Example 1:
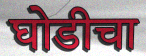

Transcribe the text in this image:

घोडीचा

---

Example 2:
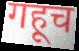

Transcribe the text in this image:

गहूच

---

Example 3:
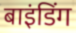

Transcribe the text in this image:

बाइंडिंग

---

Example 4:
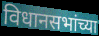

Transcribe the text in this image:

विधानसभांच्या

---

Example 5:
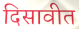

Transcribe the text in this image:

दिसावीत